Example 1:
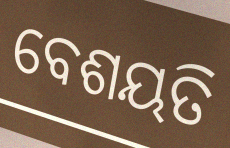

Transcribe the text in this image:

ବେଶୟତି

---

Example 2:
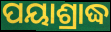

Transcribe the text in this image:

ପୟାଶ୍ରାଦ୍ଧ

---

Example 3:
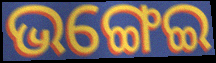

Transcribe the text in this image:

ଭଙ୍ଗେଇ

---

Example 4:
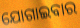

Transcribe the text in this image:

ଯୋଗାଇବାର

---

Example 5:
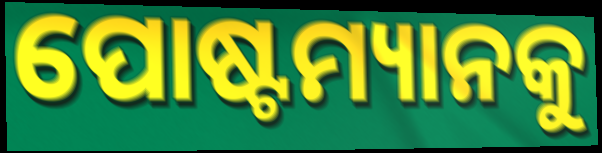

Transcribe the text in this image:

ପୋଷ୍ଟମ୍ୟାନକୁ